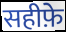
सहीफ़े